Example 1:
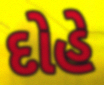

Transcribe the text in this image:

દોહે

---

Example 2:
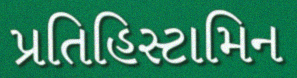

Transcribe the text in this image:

પ્રતિહિસ્ટામિન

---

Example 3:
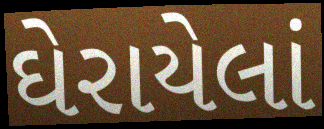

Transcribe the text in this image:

ઘેરાયેલાં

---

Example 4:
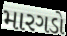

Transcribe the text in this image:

મારગડો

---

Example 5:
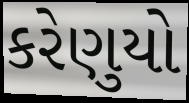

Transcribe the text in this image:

કરેણુયો